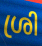
ശ്രി